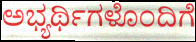
ಅಭ್ಯರ್ಥಿಗಳೊಂದಿಗೆ